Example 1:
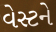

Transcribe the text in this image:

વેસ્ટને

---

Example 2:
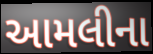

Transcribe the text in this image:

આમલીના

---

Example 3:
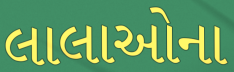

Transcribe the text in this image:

લાલાઓના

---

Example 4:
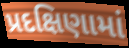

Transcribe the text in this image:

પ્રદક્ષિણામાં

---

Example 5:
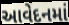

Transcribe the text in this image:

આવેદનમાં